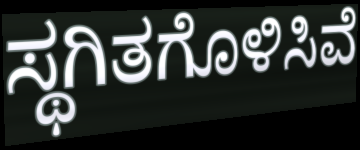
ಸ್ಥಗಿತಗೊಳಿಸಿವೆ